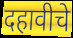
दहावीचे